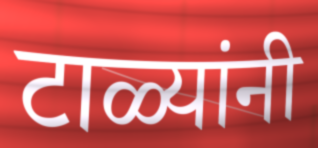
टाळ्यांनी